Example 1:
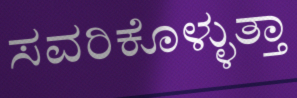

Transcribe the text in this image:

ಸವರಿಕೊಳ್ಳುತ್ತಾ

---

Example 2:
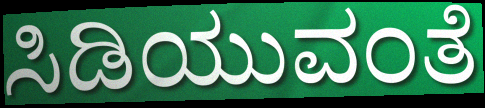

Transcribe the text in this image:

ಸಿಡಿಯುವಂತೆ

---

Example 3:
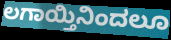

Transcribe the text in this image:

ಲಗಾಯ್ತಿನಿಂದಲೂ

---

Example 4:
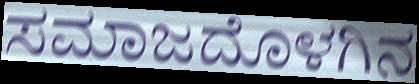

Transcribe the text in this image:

ಸಮಾಜದೊಳಗಿನ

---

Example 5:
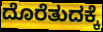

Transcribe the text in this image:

ದೊರೆತುದಕ್ಕೆ